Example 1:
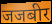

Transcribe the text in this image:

जजबीर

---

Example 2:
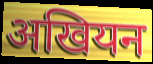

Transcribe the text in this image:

अखियन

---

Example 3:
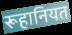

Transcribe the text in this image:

रूहानियत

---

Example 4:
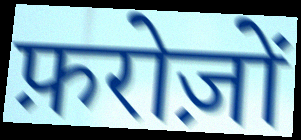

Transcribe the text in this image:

फ़रोज़ों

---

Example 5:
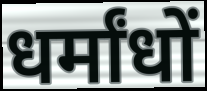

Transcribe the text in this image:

धर्मांधों